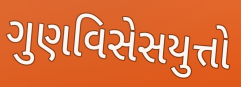
ગુણવિસેસયુત્તો